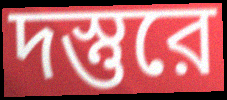
দস্তুরে